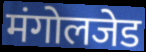
मंगोलजेड